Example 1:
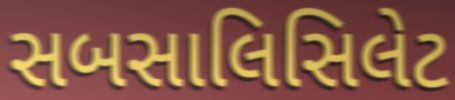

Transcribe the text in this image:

સબસાલિસિલેટ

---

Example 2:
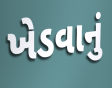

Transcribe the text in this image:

ખેડવાનું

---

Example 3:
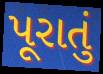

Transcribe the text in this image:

પૂરાતું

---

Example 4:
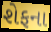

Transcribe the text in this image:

શેફના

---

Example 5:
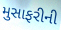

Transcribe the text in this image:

મુસાફરીની